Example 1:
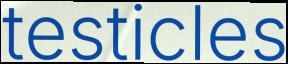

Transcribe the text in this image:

testicles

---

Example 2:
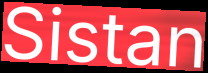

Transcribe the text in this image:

Sistan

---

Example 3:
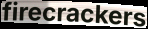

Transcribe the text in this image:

firecrackers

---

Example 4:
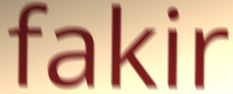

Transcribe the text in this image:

fakir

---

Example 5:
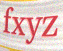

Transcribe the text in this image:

fxyz